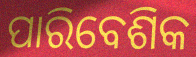
ପାରିବେଶିକ